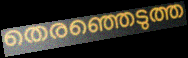
തെരഞ്ഞെടുത്ത